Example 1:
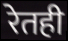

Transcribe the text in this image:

रेतही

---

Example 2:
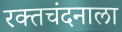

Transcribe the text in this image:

रक्तचंदनाला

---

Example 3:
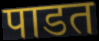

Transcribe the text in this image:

पाडत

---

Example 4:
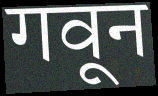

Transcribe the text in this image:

गवून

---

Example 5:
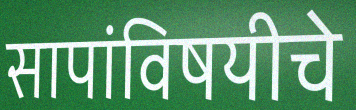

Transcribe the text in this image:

सापांविषयीचे